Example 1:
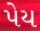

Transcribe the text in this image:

પેય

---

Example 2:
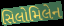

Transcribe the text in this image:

સિલોમિલેન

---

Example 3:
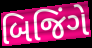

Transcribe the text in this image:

બિજિંગે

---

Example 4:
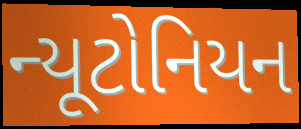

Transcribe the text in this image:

ન્યૂટોનિયન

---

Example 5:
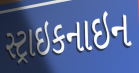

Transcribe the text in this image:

સ્ટ્રાઇકનાઇન